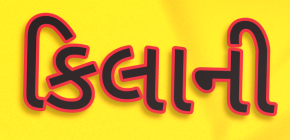
કિલાની